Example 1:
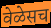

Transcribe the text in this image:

वेळेसच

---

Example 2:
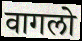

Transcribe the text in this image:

वागलो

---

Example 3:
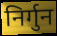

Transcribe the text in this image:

निर्गुन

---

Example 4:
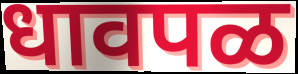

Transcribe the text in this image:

धावपळ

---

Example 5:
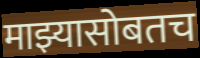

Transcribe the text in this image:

माझ्यासोबतच